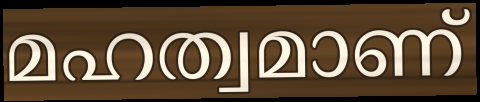
മഹത്വമാണ്